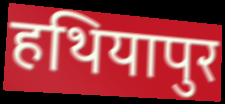
हथियापुर